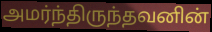
அமர்ந்திருந்தவனின்